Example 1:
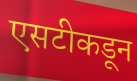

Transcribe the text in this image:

एसटीकडून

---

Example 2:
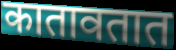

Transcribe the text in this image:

कातावतात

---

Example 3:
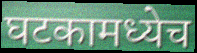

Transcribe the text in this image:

घटकामध्येच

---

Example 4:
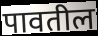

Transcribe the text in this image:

पावतील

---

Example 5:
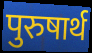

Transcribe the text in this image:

पुरुषार्थ